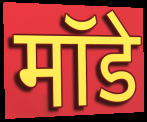
मॉडे